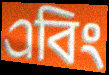
এবিং